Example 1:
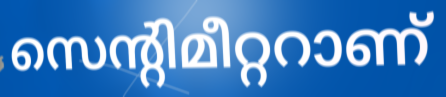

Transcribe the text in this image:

സെന്റിമീറ്ററാണ്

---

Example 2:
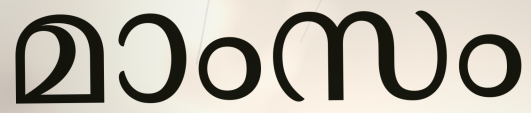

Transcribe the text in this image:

മാംസം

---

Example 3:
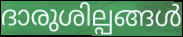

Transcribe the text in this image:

ദാരുശില്പങ്ങൾ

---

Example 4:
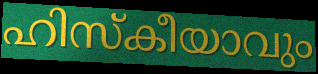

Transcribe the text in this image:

ഹിസ്കീയാവും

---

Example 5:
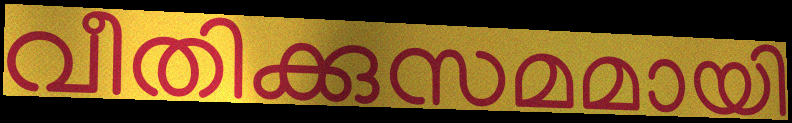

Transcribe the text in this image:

വീതിക്കുസമമായി